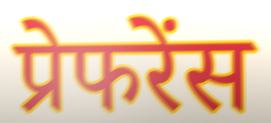
प्रेफरेंस